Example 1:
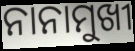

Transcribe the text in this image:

ନାନାମୁଖୀ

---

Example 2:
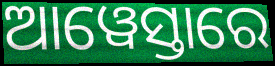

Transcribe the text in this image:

ଆୱେସ୍ତାରେ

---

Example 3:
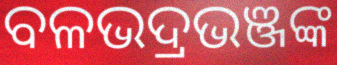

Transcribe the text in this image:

ବଳଭଦ୍ରଭଞ୍ଜଙ୍କ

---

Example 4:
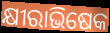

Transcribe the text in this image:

କ୍ଷୀରାଭିଷେକ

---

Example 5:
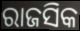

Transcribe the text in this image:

ରାଜସିକ